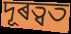
দূৰত্বত